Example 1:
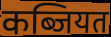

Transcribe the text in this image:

कब्जियत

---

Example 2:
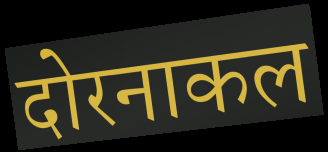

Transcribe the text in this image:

दोरनाकल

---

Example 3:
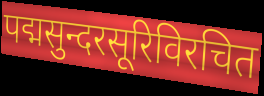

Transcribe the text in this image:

पद्मसुन्दरसूरिविरचित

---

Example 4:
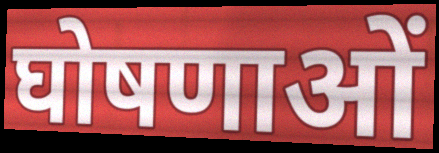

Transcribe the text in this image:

घोषणाओं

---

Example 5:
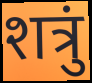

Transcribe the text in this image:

शत्रुं